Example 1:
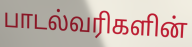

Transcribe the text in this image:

பாடல்வரிகளின்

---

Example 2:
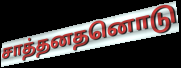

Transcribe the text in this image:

சாத்தனதனொடு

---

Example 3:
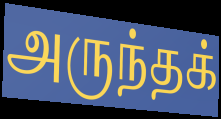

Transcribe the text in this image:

அருந்தக்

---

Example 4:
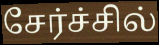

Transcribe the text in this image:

சேர்ச்சில்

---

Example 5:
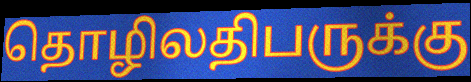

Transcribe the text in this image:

தொழிலதிபருக்கு